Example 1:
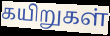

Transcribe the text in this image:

கயிறுகள்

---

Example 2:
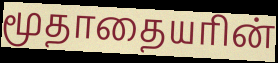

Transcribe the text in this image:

மூதாதையரின்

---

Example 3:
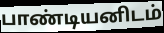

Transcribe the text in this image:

பாண்டியனிடம்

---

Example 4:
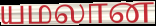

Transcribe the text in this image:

யமலான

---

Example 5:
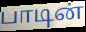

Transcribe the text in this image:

பாடின்